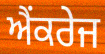
ਐਂਕਰੇਜ